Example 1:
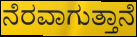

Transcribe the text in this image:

ನೆರವಾಗುತ್ತಾನೆ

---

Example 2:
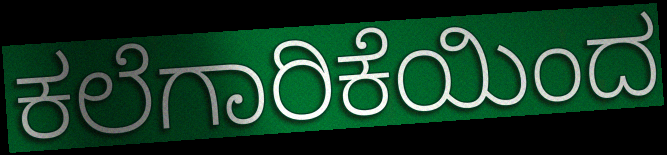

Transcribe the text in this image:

ಕಲೆಗಾರಿಕೆಯಿಂದ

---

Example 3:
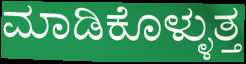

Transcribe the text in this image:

ಮಾಡಿಕೊಳ್ಳುತ್ತ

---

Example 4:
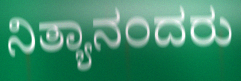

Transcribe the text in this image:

ನಿತ್ಯಾನಂದರು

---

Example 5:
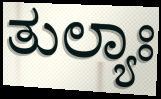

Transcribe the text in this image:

ತುಲ್ಯಾಃ